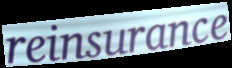
reinsurance